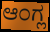
ಆಂಗ್ಲ